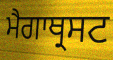
ਮੈਗਾਥ੍ਰਸਟ